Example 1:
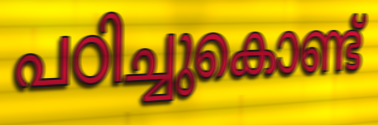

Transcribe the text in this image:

പഠിച്ചുകൊണ്ട്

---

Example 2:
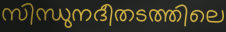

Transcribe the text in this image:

സിന്ധുനദീതടത്തിലെ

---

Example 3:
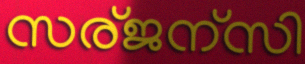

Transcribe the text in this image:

സര്ജന്സി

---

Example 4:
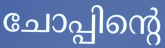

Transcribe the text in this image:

ചോപ്പിന്റെ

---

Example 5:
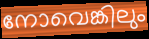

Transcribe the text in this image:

നോവെങ്കിലും